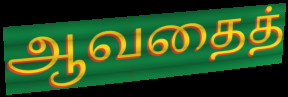
ஆவதைத்